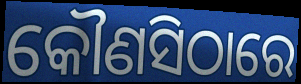
କୌଣସିଠାରେ